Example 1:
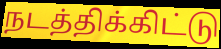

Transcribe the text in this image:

நடத்திக்கிட்டு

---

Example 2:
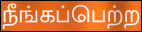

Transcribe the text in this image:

நீங்கப்பெற்ற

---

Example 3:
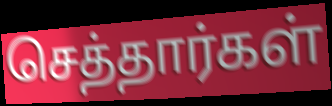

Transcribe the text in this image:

செத்தார்கள்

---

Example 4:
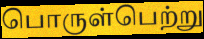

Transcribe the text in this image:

பொருள்பெற்று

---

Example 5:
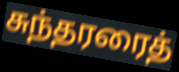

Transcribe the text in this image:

சுந்தரரைத்